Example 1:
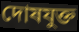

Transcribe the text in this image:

দোষযুক্ত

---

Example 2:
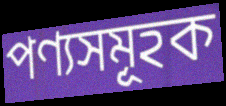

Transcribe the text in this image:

পণ্যসমূহক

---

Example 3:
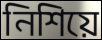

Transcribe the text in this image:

নিশিয়ে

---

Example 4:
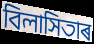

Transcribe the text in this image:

বিলাসিতাৰ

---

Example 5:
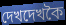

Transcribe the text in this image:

দেখদেখকৈ